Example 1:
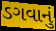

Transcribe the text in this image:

ડગવાનું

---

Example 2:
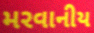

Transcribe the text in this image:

મરવાનીય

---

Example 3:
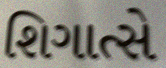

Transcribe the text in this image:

શિગાત્સે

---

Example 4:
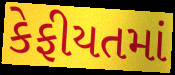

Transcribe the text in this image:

કેફીયતમાં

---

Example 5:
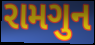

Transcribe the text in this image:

રામગુન